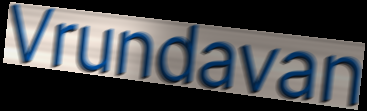
Vrundavan